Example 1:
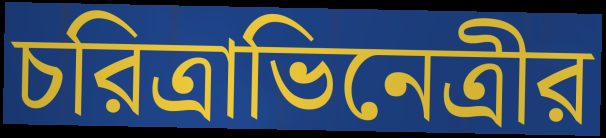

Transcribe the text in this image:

চরিত্রাভিনেত্রীর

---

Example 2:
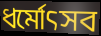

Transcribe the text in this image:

ধর্মোৎসব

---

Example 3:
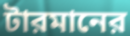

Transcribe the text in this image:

টারমানের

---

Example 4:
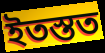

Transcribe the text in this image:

ইতস্তত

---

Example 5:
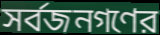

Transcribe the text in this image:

সর্বজনগণের